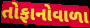
તોફાનોવાળા